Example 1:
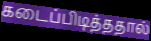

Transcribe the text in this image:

கடைப்பிடித்ததால்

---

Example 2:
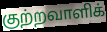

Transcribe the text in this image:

குற்றவாளிக்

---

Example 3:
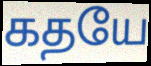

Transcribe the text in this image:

கதயே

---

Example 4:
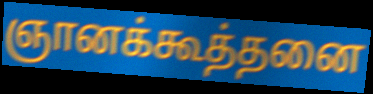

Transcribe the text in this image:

ஞானக்கூத்தனை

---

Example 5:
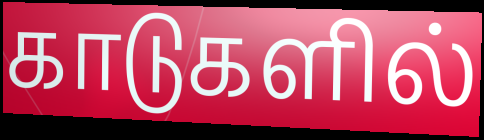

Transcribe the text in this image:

காடுகளில்